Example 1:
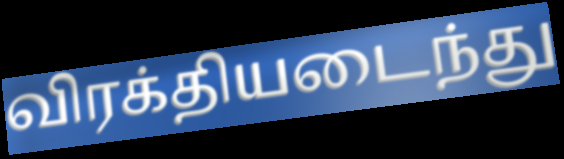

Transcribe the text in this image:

விரக்தியடைந்து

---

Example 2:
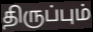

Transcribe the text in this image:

திருப்பும்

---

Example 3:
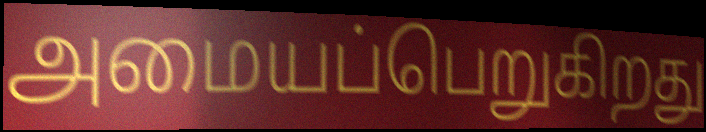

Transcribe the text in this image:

அமையப்பெறுகிறது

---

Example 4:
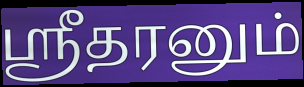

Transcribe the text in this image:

ஸ்ரீதரனும்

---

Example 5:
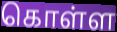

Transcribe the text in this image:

கொள்ள